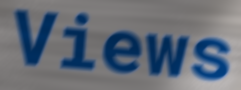
Views